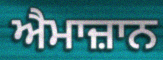
ਐਮਾਜ਼ਾਨ